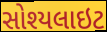
સોશ્યલાઇટ